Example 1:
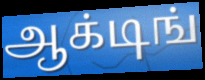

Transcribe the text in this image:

ஆக்டிங்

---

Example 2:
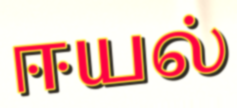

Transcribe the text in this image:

ஈயல்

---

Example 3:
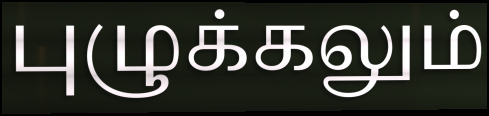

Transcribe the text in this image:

புழுக்கலும்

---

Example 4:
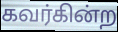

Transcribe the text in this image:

கவர்கின்ற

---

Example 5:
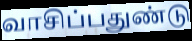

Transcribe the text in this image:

வாசிப்பதுண்டு